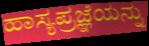
ಹಾಸ್ಯಪ್ರಜ್ಞೆಯನ್ನು